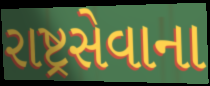
રાષ્ટ્રસેવાના